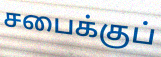
சபைக்குப்